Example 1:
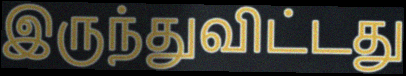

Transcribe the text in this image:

இருந்துவிட்டது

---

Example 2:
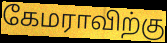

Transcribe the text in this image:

கேமராவிற்கு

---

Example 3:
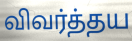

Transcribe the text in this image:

விவர்த்தய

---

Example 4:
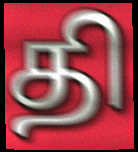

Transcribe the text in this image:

தி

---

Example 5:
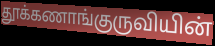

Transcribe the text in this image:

தூக்கணாங்குருவியின்